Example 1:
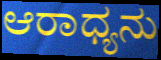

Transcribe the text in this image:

ಆರಾಧ್ಯನು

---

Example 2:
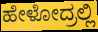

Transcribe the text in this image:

ಹೇಳೋದ್ರಲ್ಲಿ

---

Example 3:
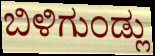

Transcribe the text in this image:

ಬಿಳಿಗುಂಡ್ಲು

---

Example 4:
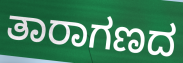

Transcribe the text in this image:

ತಾರಾಗಣದ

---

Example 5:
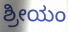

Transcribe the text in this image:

ಶ್ರೀಯಂ